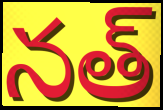
నత్